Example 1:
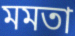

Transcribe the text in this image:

মমতা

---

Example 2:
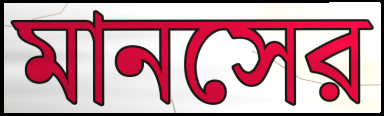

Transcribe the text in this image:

মানসের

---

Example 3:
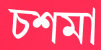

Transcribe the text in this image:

চশমা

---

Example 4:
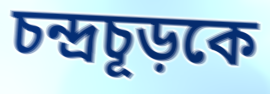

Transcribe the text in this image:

চন্দ্রচূড়কে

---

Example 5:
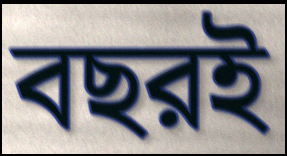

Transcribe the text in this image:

বছরই